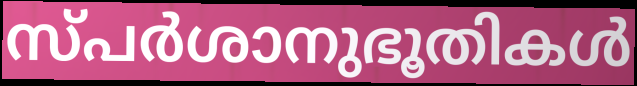
സ്പർശാനുഭൂതികൾ